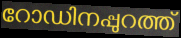
റോഡിനപ്പുറത്ത്